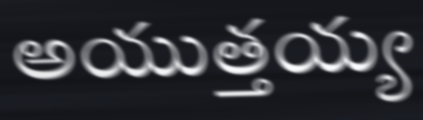
అయుత్తయ్య